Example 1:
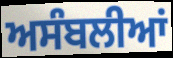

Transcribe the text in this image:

ਅਸੰਬਲੀਆਂ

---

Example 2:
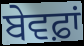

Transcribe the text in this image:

ਬੇਵਫ਼ਾਂ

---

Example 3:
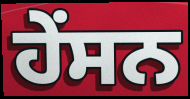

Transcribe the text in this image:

ਹੇਂਸਨ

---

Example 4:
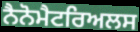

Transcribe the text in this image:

ਨੈਨੋਮੈਟਰਿਅਲਸ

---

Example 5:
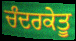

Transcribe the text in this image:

ਚੰਦਰਕੇਤੂ